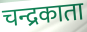
चन्द्रकाता